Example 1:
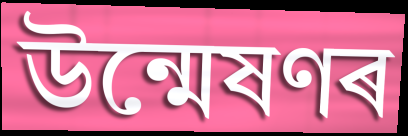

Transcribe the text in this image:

উন্মেষণৰ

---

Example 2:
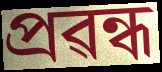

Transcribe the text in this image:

প্ৰৱন্ধ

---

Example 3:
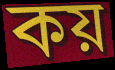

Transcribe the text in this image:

কয়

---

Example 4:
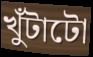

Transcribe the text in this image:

খুঁটাটো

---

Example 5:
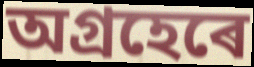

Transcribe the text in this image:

অগ্ৰহেৰে